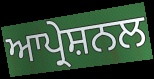
ਆਪ੍ਰੇਸ਼ਨਲ